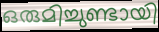
ഒരുമിച്ചുണ്ടായി